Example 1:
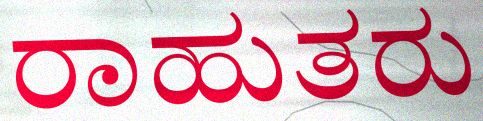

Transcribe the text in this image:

ರಾಹುತರು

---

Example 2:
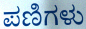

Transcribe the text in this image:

ಪಣಿಗಳು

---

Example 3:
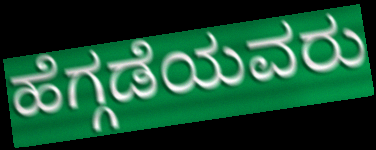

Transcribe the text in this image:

ಹೆಗ್ಗಡೆಯವರು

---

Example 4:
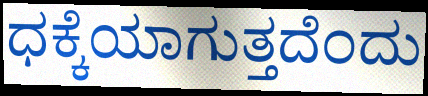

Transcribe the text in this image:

ಧಕ್ಕೆಯಾಗುತ್ತದೆಂದು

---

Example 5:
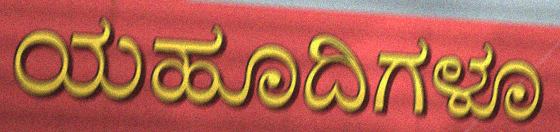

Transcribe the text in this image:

ಯಹೂದಿಗಳೂ